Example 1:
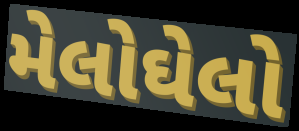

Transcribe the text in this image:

મેલોઘેલો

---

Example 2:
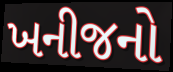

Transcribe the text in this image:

ખનીજનો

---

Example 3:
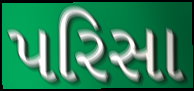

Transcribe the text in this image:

પરિસા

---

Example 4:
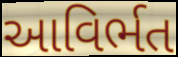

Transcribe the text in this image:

આવિર્ભત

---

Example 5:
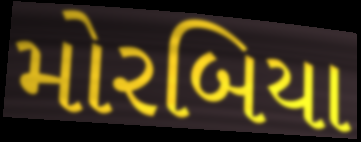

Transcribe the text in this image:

મોરબિયા